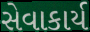
સેવાકાર્ય